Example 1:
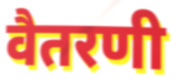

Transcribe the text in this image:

वैतरणी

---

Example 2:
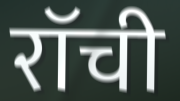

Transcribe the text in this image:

रॉची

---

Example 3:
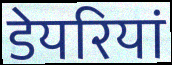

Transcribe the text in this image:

डेयरियां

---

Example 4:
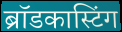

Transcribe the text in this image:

ब्रॉडकास्टिंग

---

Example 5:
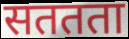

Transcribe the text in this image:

सततता